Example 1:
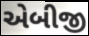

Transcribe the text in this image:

એબીજી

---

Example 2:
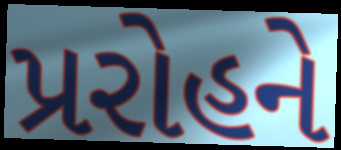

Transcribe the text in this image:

પ્રરોહને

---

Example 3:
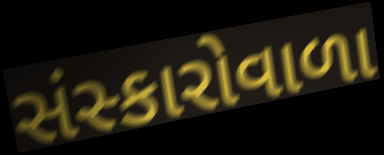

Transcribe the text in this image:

સંસ્કારોવાળા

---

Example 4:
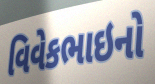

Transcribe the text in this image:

વિવેકભાઇનો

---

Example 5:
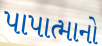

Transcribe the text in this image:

પાપાત્માનો